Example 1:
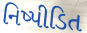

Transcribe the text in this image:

નિષ્પીડિત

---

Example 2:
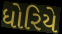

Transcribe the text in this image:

ધોરિયે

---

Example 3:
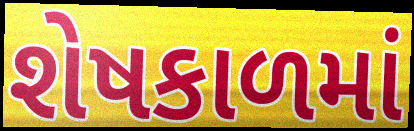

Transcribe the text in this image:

શેષકાળમાં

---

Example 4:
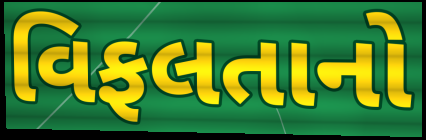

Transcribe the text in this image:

વિફલતાનો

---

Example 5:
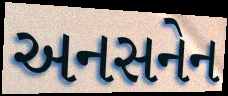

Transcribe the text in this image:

અનસનેન